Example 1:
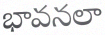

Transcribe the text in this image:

భావనలా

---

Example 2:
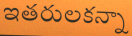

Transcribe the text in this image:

ఇతరులకన్నా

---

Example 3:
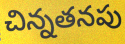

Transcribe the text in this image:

చిన్నతనపు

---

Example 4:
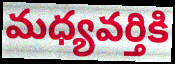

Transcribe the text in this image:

మధ్యవర్తికి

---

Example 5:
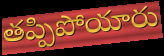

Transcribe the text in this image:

తప్పిపోయారు